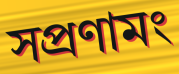
সপ্রণামং